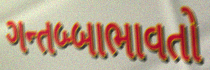
ગન્તબ્બાભાવતો